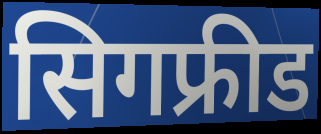
सिगफ्रीड